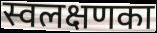
स्वलक्षणका